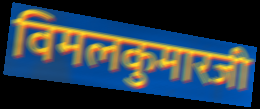
विमलकुमारजी